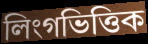
লিংগভিত্তিক